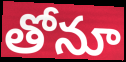
తోనూ